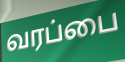
வரப்பை